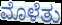
ಮೊಳೆತು